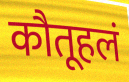
कौतूहलं